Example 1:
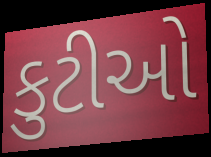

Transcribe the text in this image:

કુટીઓ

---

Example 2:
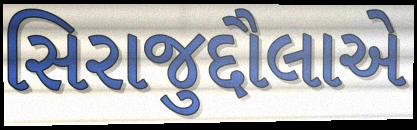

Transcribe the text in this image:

સિરાજુદ્દૌલાએ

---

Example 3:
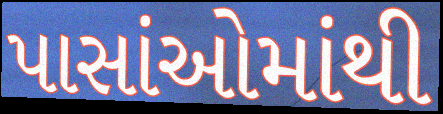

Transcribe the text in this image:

પાસાંઓમાંથી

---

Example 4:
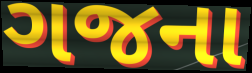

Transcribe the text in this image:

ગજના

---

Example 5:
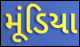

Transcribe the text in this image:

મૂંડિયા